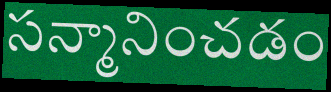
సన్మానించడం